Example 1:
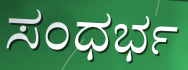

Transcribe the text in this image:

ಸಂಧರ್ಭ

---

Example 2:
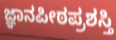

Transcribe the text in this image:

ಜ್ಞಾನಪೀಠಪ್ರಶಸ್ತಿ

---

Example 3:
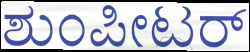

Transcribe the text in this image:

ಶುಂಪೀಟರ್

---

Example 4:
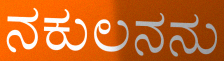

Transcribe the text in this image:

ನಕುಲನನು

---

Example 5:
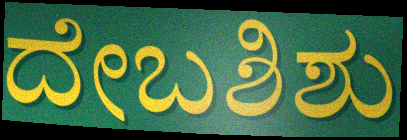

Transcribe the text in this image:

ದೇಬಶಿಶು